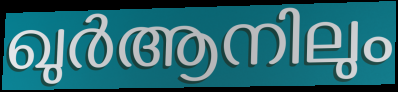
ഖുർആനിലും